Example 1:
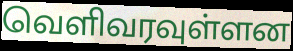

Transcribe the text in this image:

வெளிவரவுள்ளன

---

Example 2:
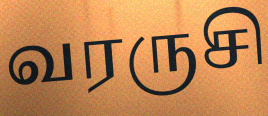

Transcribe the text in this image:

வரருசி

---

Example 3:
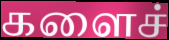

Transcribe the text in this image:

களைச்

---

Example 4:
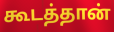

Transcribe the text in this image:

கூடத்தான்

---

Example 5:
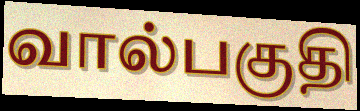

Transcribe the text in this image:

வால்பகுதி